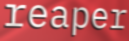
reaper